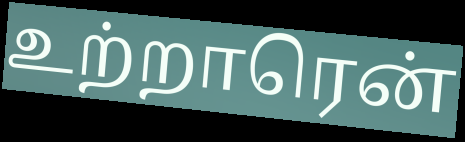
உற்றாரென்